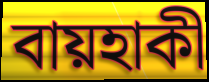
বায়হাকী